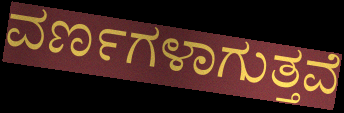
ವರ್ಣಗಳಾಗುತ್ತವೆ